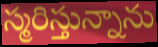
స్మరిస్తున్నాను